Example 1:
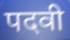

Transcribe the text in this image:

पदवी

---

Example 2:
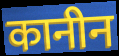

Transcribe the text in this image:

कानीन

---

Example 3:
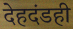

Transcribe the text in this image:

देहदंडही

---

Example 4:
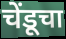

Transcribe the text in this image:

चेंडूचा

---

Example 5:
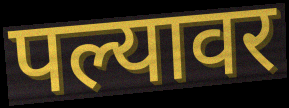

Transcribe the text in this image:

पल्यावर